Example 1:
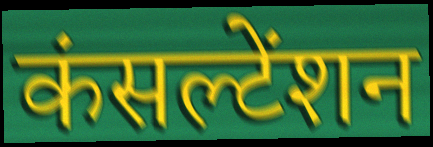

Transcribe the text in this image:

कंसल्टेंशन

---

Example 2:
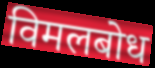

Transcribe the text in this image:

विमलबोध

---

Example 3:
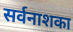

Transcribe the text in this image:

सर्वनाशका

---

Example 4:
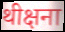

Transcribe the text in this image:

थीक्षना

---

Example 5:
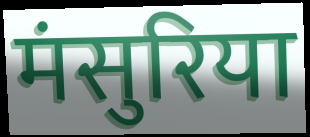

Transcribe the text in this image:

मंसुरिया